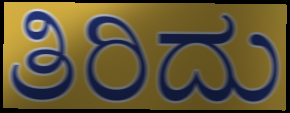
ತಿರಿದು